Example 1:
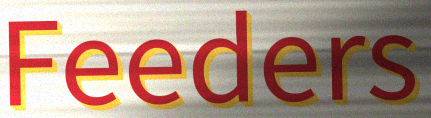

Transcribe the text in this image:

Feeders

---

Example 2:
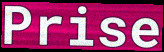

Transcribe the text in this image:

Prise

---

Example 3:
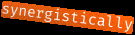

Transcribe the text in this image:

synergistically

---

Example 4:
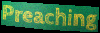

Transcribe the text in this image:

Preaching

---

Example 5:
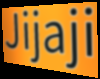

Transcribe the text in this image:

Jijaji